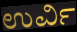
ಉರ್ವಿ